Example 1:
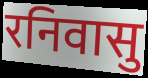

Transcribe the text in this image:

रनिवासु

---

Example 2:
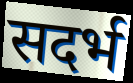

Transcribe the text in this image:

सदर्भ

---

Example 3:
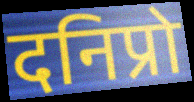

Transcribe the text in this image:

दनिप्रो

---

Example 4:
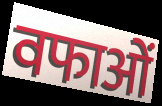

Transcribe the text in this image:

वफाओं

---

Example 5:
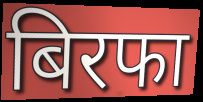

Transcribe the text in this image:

बिरफा